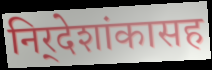
निर्देशांकासह